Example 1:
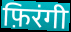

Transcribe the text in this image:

फ़िरंगी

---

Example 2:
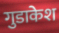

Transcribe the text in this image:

गुडाकेश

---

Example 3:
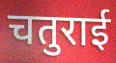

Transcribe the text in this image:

चतुराई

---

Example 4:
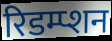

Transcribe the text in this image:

रिडम्प्शन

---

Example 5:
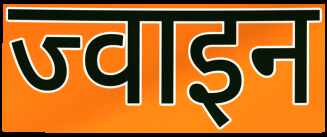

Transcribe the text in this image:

ज्वाइन